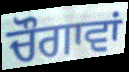
ਚੌਗਾਵਾਂ